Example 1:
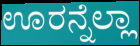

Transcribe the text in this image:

ಊರನ್ನೆಲ್ಲಾ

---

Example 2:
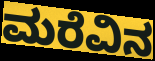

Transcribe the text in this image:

ಮರೆವಿನ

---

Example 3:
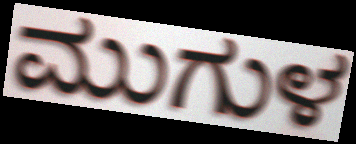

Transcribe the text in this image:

ಮುಗುಳ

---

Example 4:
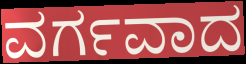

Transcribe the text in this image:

ವರ್ಗವಾದ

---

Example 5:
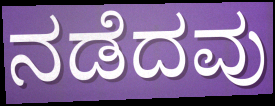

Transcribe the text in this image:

ನಡೆದವು